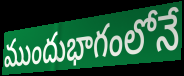
ముందుభాగంలోనే